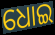
ଧୋଇ